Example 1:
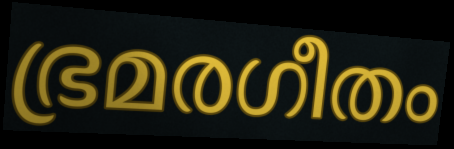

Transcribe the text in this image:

ഭ്രമരഗീതം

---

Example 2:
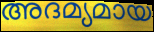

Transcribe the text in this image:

അദമ്യമായ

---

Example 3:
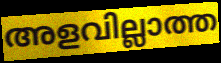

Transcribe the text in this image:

അളവില്ലാത്ത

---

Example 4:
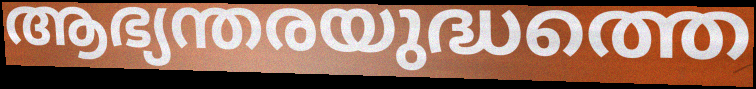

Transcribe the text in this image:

ആഭ്യന്തരയുദ്ധത്തെ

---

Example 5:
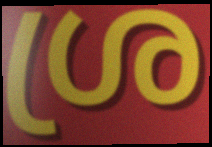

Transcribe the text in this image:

ശ്ര